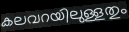
കലവറയിലുള്ളതും